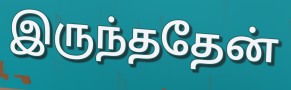
இருந்ததேன்